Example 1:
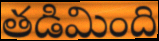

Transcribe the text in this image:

తడిమింది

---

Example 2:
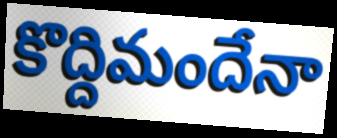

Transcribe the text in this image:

కొద్దిమందేనా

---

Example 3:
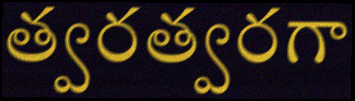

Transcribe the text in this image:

త్వరత్వరగా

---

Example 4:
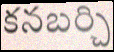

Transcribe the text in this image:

కనబర్చి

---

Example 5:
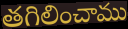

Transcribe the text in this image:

తగిలించాము